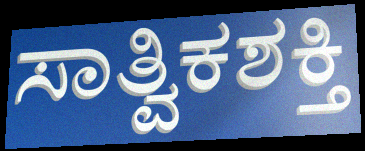
ಸಾತ್ವಿಕಶಕ್ತಿ